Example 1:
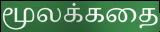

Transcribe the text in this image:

மூலக்கதை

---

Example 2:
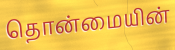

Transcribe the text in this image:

தொன்மையின்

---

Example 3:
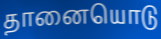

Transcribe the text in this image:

தானையொடு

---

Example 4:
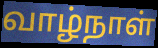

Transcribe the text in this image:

வாழ்நாள்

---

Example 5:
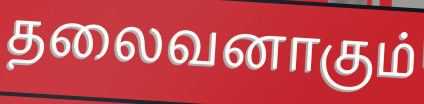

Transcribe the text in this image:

தலைவனாகும்